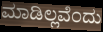
ಮಾಡಿಲ್ಲವೆಂದು